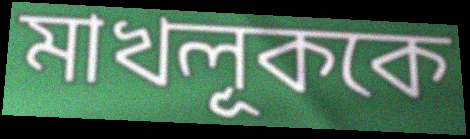
মাখলূককে